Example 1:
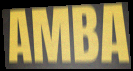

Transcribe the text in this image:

AMBA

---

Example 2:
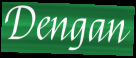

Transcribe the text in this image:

Dengan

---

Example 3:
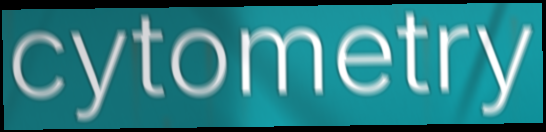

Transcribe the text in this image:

cytometry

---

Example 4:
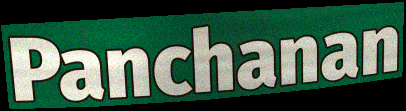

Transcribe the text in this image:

Panchanan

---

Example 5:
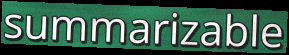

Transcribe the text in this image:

summarizable